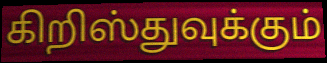
கிறிஸ்துவுக்கும்